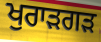
ਖੁਰਾੜਗੜ